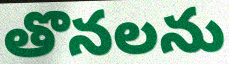
తొనలను